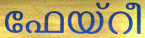
ഫേയ്റീ